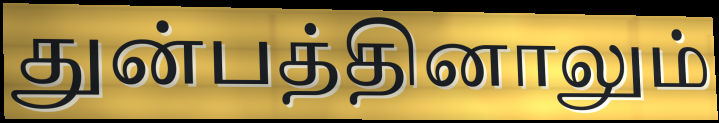
துன்பத்தினாலும்